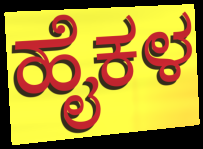
ಹೈಕಳ